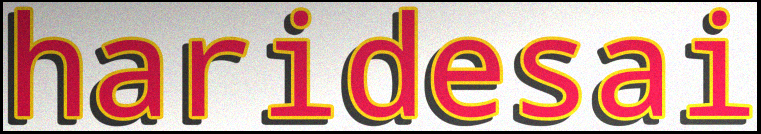
haridesai